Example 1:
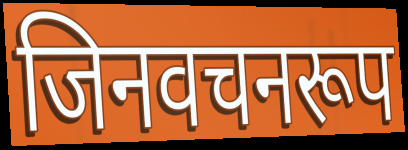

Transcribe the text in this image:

जिनवचनरूप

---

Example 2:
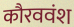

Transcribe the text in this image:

कौरववंश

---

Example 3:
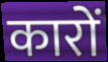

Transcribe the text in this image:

कारों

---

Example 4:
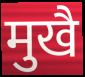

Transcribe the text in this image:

मुखै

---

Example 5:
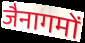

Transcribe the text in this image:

जैनागमों